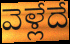
వెళ్లేదే